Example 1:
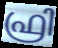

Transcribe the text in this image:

ഫ്രി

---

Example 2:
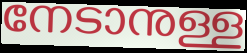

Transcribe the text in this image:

നേടാനുള്ള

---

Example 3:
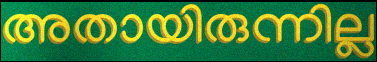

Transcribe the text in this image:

അതായിരുന്നില്ല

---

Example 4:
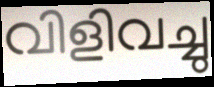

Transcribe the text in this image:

വിളിവച്ചു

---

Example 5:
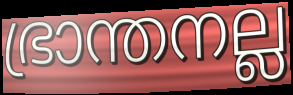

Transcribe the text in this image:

ഭ്രാന്തനല്ല